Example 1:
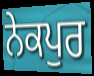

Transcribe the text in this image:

ਨੇਕਪੁਰ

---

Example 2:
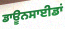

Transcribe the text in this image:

ਡਾਊਨਸਾਈਡਾਂ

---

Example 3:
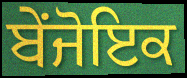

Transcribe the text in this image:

ਬੇਂਜੋਇਕ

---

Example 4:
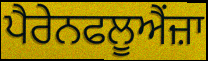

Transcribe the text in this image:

ਪੈਰੇਨਫਲੂਐਂਜ਼ਾ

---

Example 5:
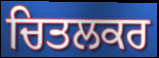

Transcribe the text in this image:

ਚਿਤਲਕਰ